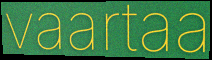
vaartaa